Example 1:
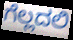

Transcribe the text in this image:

ಗೆಲ್ಲದಲಿ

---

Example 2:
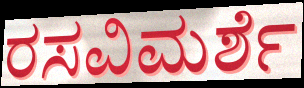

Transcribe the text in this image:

ರಸವಿಮರ್ಶೆ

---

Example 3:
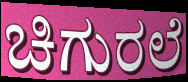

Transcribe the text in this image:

ಚಿಗುರಲೆ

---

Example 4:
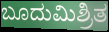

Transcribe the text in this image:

ಬೂದುಮಿಶ್ರಿತ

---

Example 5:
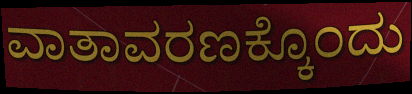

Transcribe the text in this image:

ವಾತಾವರಣಕ್ಕೊಂದು